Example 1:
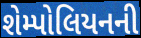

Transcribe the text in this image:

શેમ્પોલિયનની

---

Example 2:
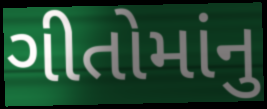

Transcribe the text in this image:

ગીતોમાંનુ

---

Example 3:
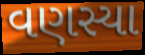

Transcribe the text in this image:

વણસ્યા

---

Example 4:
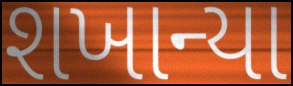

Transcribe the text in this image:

શખાન્યા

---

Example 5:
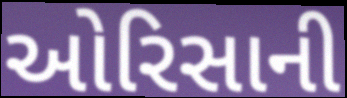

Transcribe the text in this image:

ઓરિસાની